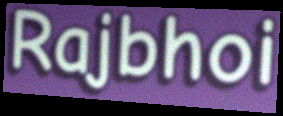
Rajbhoi